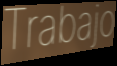
Trabajo